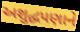
અશુદ્ધપણાને